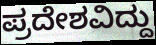
ಪ್ರದೇಶವಿದ್ದು